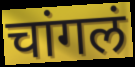
चांगलं